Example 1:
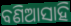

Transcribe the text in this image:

ବଣିଆସାହି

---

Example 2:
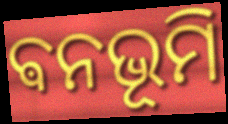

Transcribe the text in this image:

ଵନଭୂମି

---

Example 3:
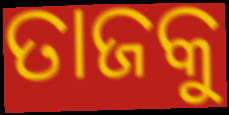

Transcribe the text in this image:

ତାଜକୁ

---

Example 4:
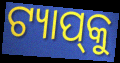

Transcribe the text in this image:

ଟ୍ୟାପ୍‌କୁ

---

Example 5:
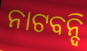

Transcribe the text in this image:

ନାଟବନ୍ଦି